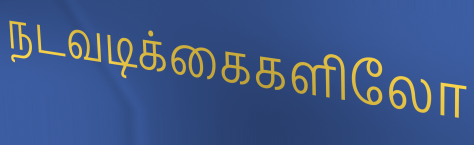
நடவடிக்கைகளிலோ